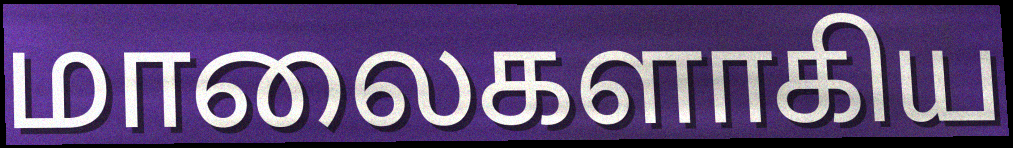
மாலைகளாகிய